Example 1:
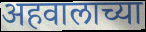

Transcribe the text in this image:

अहवालाच्या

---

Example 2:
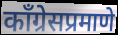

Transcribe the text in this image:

काँग्रेसप्रमाणे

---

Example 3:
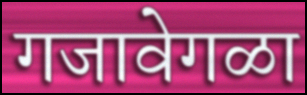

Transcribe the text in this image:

गजावेगळा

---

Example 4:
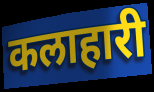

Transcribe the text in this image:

कलाहारी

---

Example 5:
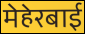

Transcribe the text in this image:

मेहेरबाई